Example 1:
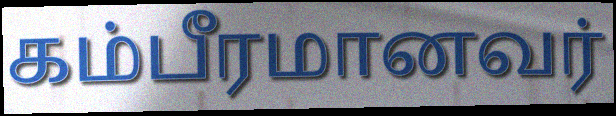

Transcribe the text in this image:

கம்பீரமானவர்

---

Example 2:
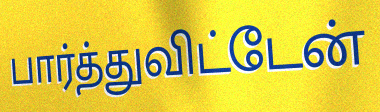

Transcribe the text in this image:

பார்த்துவிட்டேன்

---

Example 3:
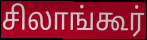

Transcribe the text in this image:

சிலாங்கூர்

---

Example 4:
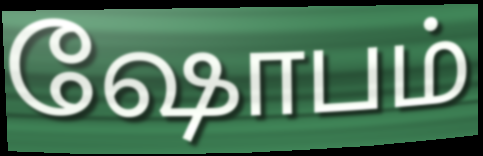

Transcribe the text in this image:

ஷோபம்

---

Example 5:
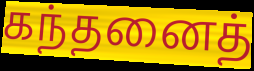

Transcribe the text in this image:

கந்தனைத்